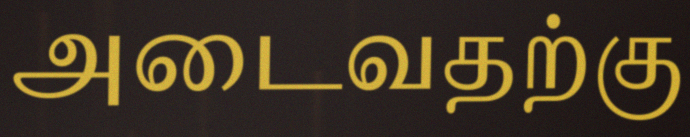
அடைவதற்கு